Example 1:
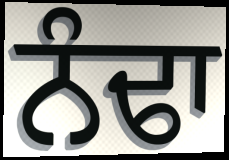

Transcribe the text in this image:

ਨੰਢਾ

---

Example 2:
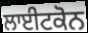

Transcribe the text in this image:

ਲਾਈਟਕੋਨ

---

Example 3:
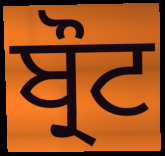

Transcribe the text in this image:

ਬ੍ਰੌਟ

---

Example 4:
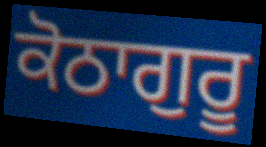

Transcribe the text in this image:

ਕੋਠਾਗੁਰੂ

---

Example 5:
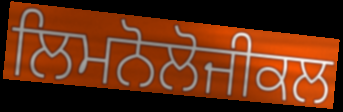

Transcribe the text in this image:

ਲਿਮਨੋਲੋਜੀਕਲ